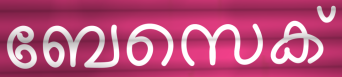
ബേസെക്